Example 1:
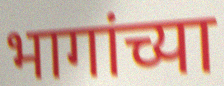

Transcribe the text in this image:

भागांच्या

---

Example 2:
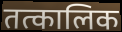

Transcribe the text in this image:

तत्कालिक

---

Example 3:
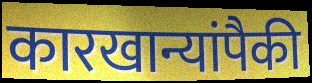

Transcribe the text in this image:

कारखान्यांपैकी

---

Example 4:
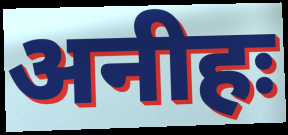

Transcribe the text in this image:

अनीहः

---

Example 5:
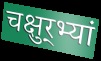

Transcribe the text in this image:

चक्षुर्भ्यां